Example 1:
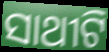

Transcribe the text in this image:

ସାଥୀଟି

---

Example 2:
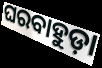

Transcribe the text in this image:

ଘରବାହୁଡ଼ା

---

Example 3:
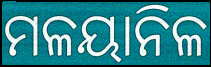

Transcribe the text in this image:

ମଳୟାନିଳ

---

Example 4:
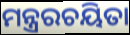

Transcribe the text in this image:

ମନ୍ତ୍ରରଚୟିତା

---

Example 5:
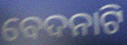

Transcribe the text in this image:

ବେଦନାଟି